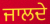
ਜਾਲਦੇ